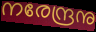
നരേന്ദ്രനു